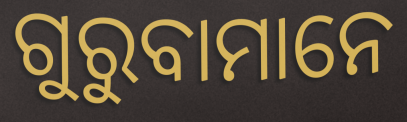
ଗୁରୁବାମାନେ